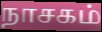
நாசகம்